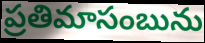
ప్రతిమాసంబును